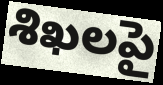
శిఖలపై